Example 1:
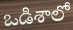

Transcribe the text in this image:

ఒడిశాలో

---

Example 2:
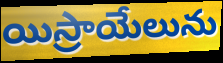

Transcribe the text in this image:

యిస్రాయేలును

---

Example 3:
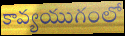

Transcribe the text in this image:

కావ్యయుగంలో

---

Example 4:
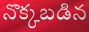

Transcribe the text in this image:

నొక్కబడిన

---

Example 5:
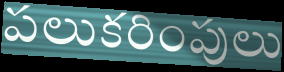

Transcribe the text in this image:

పలుకరింపులు